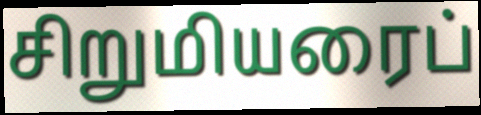
சிறுமியரைப்